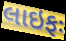
લાઇફઃ